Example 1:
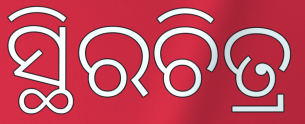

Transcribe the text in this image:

ସ୍ଥିରଚିତ୍ର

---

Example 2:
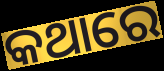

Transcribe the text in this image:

କଥାରେ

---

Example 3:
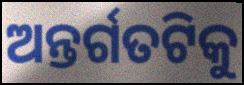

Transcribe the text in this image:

ଅନ୍ତର୍ଗତଟିକୁ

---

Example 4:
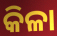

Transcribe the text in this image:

କିଳା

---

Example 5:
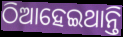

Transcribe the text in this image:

ଠିଆହେଇଥାନ୍ତି